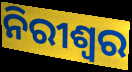
ନିରୀଶ୍ୱର